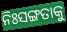
ନିଃସଙ୍ଗତାକୁ